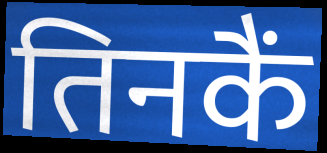
तिनकैं